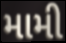
મામી